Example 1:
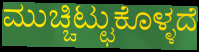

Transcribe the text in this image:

ಮುಚ್ಚಿಟ್ಟುಕೊಳ್ಳದೆ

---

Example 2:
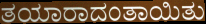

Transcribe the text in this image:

ತಯಾರಾದಂತಾಯಿತು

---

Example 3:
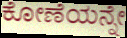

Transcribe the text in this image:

ಕೋಣೆಯನ್ನೇ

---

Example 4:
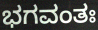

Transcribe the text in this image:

ಭಗವಂತಃ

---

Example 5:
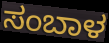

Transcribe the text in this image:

ಸಂಬಾಳ